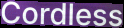
Cordless